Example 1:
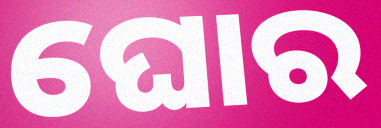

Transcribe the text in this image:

ଘୋର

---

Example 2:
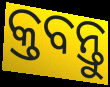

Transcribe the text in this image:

କ୍ତବନ୍ତୁ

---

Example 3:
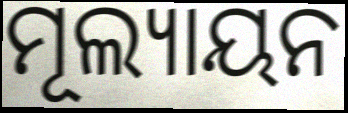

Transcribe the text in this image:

ମୂଲ୍ୟାୟନ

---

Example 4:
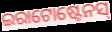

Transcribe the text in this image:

ଇରାଟୋଷ୍ଟେନସ୍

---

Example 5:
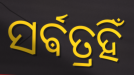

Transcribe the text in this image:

ସର୍ଵତ୍ରହିଁ